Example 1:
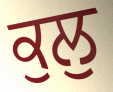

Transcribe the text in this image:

ਕੁਲੁ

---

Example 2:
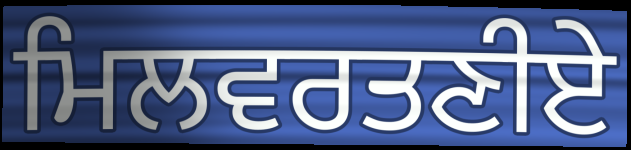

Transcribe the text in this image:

ਮਿਲਵਰਤਣੀਏ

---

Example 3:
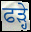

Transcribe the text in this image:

ਫੜ੍ਹੇ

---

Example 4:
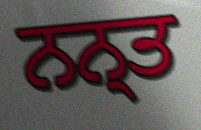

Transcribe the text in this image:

ਨਨ੍ਤ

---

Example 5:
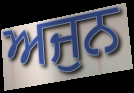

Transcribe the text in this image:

ਅਜੁਨ